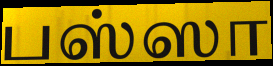
பஸ்ஸா